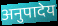
अनुपादेय